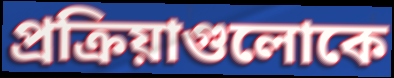
প্রক্রিয়াগুলোকে